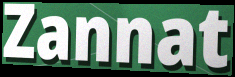
Zannat